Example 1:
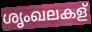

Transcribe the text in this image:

ശൃംഖലകള്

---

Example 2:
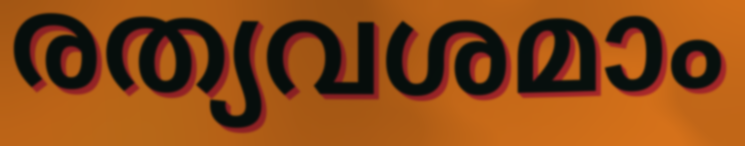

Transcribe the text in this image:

രത്യവശമാം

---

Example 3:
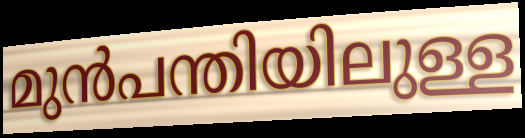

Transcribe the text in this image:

മുൻപന്തിയിലുള്ള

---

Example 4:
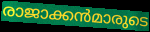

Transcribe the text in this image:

രാജാക്കൻമാരുടെ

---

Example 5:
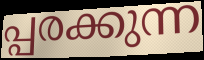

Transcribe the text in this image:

പ്പരക്കുന്ന